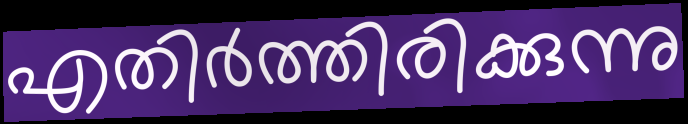
എതിർത്തിരിക്കുന്നു